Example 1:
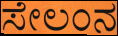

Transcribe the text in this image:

ಸೇಲಂನ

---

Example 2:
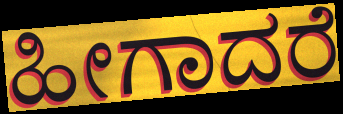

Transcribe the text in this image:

ಹೀಗಾದರೆ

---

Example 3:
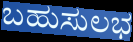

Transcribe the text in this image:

ಬಹುಸುಲಭ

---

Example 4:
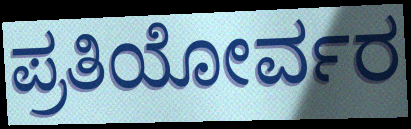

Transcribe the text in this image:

ಪ್ರತಿಯೋರ್ವರ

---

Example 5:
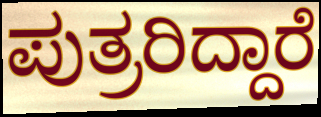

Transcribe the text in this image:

ಪುತ್ರರಿದ್ದಾರೆ